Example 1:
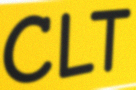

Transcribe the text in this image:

CLT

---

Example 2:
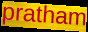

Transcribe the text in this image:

pratham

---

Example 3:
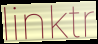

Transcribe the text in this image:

linktr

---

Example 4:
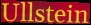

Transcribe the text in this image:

Ullstein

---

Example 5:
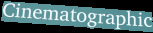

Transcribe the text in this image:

Cinematographic